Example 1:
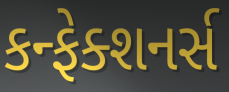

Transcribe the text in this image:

કન્ફેક્શનર્સ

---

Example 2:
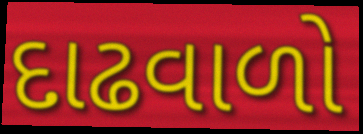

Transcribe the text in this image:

દાઢવાળો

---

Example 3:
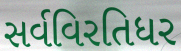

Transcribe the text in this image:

સર્વવિરતિધર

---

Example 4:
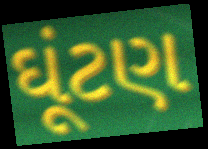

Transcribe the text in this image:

ઘૂંટણ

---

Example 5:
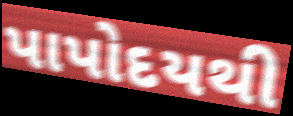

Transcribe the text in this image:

પાપોદયથી